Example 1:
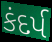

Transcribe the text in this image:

કંદર્પ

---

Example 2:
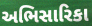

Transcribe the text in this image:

અભિસારિકા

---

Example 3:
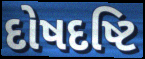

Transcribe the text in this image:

દોષદષ્ટિ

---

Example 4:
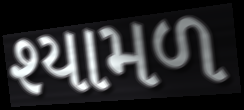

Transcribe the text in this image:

શ્યામળ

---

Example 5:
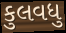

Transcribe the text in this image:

કુલવધુ